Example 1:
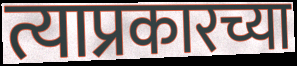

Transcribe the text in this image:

त्याप्रकारच्या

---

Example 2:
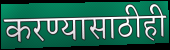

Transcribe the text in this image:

करण्यासाठीही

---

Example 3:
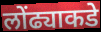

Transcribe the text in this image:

लोंढ्याकडे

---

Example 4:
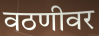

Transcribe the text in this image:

वठणीवर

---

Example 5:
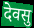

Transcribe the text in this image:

देवसु